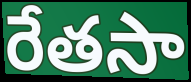
రేతసా